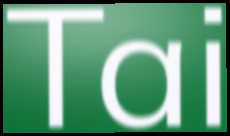
Tai